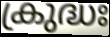
ക്രുദ്ധഃ